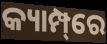
କ୍ୟାମ୍ପ୍‌ରେ